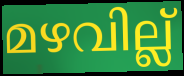
മഴവില്ല്